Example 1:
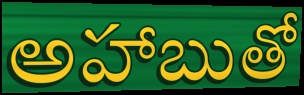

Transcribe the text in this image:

అహాబుతో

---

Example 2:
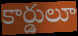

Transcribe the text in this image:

కార్డులూ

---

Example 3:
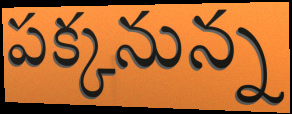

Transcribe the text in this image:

పక్కనున్న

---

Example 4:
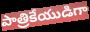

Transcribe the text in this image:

పాత్రికేయుడిగా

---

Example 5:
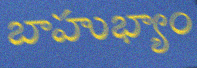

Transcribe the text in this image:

బాహుభ్యాం